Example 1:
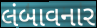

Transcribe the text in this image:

લંબાવનાર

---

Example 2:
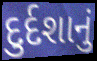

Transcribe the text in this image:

દુર્દશાનું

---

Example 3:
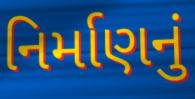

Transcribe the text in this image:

નિર્માણનું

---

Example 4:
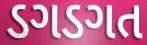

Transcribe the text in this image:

ડગડગત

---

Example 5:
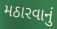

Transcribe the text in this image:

મઠારવાનું